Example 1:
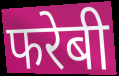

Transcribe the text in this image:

फरेबी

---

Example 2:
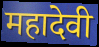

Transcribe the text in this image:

महादेवी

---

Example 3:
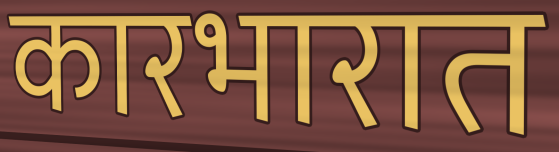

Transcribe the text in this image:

कारभारात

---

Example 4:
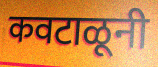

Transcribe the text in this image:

कवटाळूनी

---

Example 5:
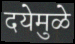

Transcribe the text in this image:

दयेमुळे